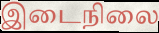
இடைநிலை